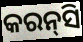
କରନ୍‌ସି